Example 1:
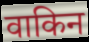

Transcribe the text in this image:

वाकिन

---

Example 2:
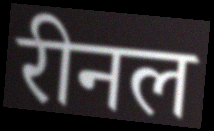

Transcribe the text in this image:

रीनल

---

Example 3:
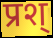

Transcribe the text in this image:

प्रश्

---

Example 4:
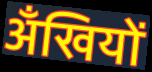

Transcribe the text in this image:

अँखियों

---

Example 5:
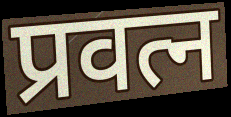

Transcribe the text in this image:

प्रवत्न